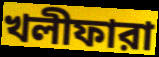
খলীফারা